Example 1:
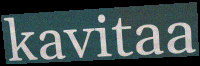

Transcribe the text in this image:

kavitaa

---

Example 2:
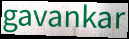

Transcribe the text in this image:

gavankar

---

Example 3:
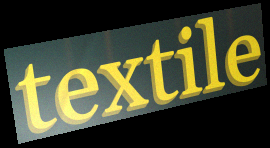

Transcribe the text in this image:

textile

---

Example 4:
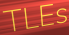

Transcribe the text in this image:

TLEs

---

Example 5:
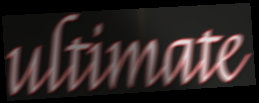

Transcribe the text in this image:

ultimate